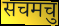
सचमचु